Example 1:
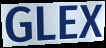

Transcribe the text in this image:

GLEX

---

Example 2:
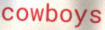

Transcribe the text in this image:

cowboys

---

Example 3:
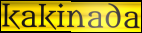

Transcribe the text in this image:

kakinada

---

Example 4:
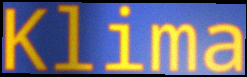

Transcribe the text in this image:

Klima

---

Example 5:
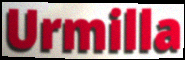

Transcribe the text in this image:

Urmilla